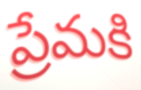
ప్రేమకి